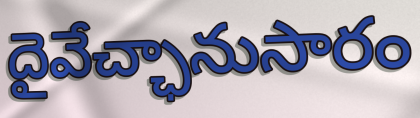
దైవేచ్ఛానుసారం